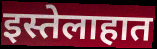
इस्तेलाहात